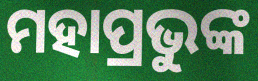
ମହାପ୍ରଭୁଙ୍କ